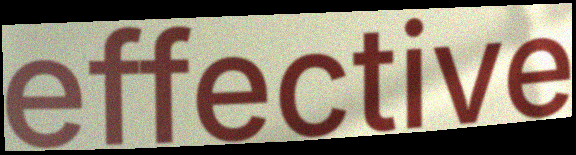
effective